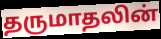
தருமாதலின்